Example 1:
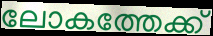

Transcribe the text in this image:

ലോകത്തേക്ക്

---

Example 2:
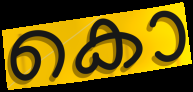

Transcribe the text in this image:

കൊ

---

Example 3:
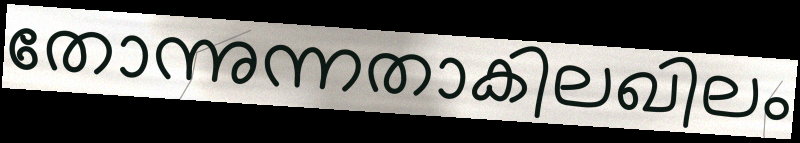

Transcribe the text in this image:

തോന്നുന്നതാകിലഖിലം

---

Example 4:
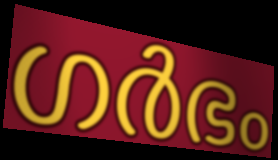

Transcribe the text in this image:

ഗർഭം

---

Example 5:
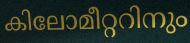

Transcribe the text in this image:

കിലോമീറ്ററിനും